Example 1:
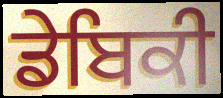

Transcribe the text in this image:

ਡੇਬਿਕੀ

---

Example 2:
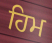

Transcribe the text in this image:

ਹਿਮ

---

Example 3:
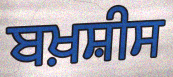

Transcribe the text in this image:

ਬਖ਼ਸ਼ੀਸ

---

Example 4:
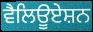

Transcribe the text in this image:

ਵੈਲਿਊਏਸ਼ਨ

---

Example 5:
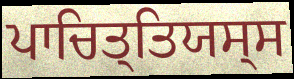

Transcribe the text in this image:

ਪਾਚਿਤ੍ਤਿਯਸ੍ਸ